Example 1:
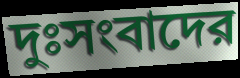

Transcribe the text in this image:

দুঃসংবাদের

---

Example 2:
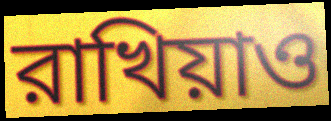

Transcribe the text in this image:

রাখিয়াও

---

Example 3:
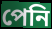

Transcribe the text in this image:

পেনি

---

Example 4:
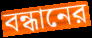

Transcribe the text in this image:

বন্ধানের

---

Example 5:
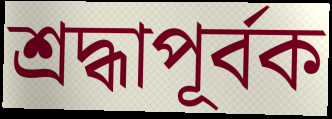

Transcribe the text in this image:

শ্রদ্ধাপূর্বক